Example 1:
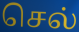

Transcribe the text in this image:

செல்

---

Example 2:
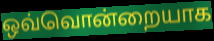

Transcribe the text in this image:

ஒவ்வொன்றையாக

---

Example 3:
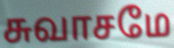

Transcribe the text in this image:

சுவாசமே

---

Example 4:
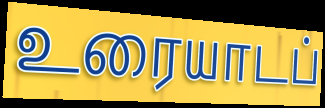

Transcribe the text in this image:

உரையாடப்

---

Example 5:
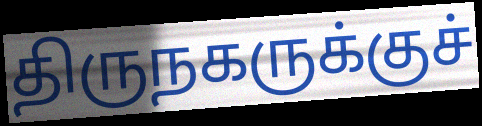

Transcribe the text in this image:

திருநகருக்குச்